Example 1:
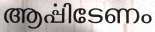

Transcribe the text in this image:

ആൎപ്പിടേണം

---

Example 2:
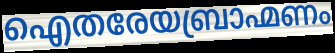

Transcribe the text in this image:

ഐതരേയബ്രാഹ്മണം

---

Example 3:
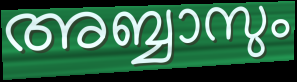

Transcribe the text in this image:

അബ്ബാസും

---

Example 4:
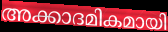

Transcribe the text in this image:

അക്കാദമികമായി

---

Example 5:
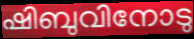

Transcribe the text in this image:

ഷിബുവിനോടു